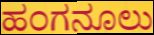
ಹಂಗನೂಲು